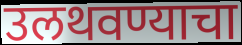
उलथवण्याचा